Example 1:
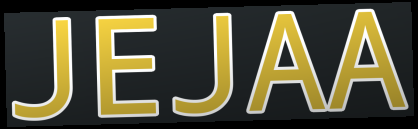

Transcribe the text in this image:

JEJAA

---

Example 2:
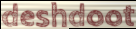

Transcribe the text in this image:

deshdoot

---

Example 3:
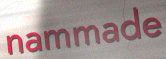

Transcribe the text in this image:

nammade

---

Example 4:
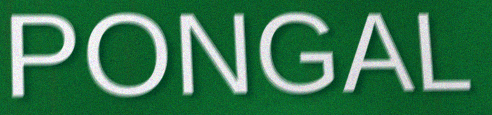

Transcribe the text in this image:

PONGAL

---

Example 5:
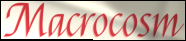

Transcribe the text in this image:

Macrocosm